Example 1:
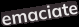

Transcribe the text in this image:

emaciate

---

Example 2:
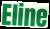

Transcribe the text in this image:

Eline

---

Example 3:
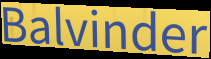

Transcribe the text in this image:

Balvinder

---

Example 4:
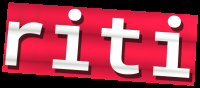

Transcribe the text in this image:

riti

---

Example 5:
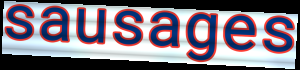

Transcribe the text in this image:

sausages